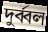
দুৰ্ব্বল